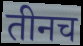
तीनच